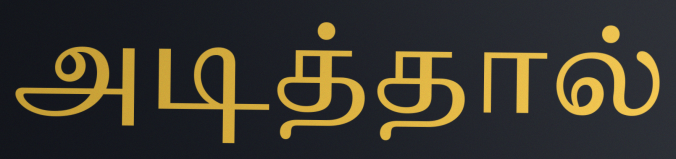
அடித்தால்